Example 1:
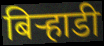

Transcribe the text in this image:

बिर्‍हाडी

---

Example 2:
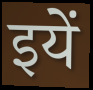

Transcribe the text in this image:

इयें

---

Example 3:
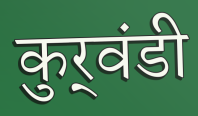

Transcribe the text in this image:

कुर्वंडी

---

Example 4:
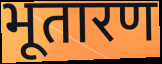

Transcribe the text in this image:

भूतारण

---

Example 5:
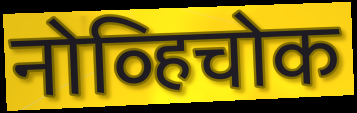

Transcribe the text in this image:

नोव्हिचोक